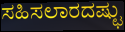
ಸಹಿಸಲಾರದಷ್ಟು